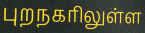
புறநகரிலுள்ள